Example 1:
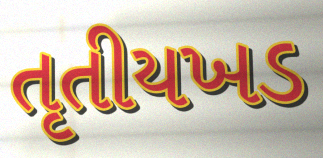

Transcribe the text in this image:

તૃતીયખડ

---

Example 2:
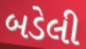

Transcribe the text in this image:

બડેલી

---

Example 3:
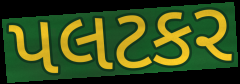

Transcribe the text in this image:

પલટકર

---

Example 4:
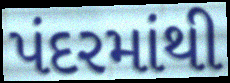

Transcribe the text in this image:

પંદરમાંથી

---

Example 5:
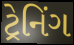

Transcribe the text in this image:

ટ્રેનિંગ